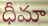
ధీమా